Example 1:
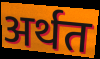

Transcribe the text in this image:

अर्थत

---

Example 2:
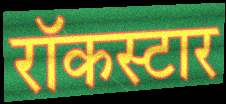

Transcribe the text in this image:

रॉकस्टार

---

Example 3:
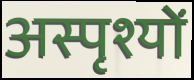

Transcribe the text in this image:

अस्पृश्यों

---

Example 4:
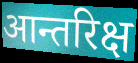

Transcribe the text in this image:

आन्तरिक्ष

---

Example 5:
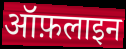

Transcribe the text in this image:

ऑफ़लाइन